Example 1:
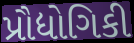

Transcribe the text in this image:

પ્રૌદ્યોગિકી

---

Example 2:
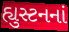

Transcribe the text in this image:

હ્યુસ્ટનનાં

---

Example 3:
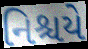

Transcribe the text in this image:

નિશ્ચયે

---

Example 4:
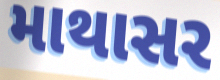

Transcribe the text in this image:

માથાસર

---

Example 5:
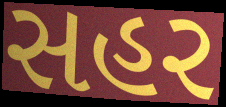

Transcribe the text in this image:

સહર